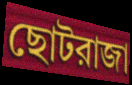
ছোটরাজা